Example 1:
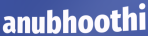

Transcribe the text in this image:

anubhoothi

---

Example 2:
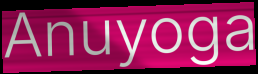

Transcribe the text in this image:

Anuyoga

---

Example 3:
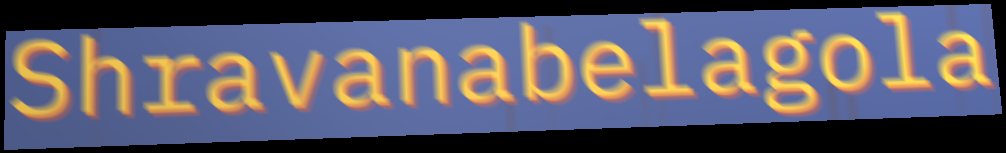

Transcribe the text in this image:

Shravanabelagola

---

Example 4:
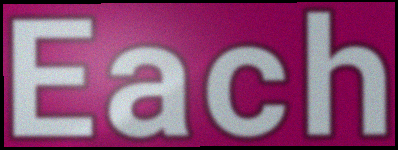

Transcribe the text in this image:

Each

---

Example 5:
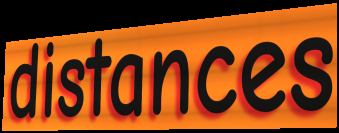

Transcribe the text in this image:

distances